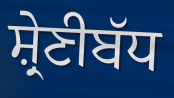
ਸ਼੍ਰੇਣੀਬੱਧ